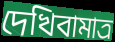
দেখিবামাত্র